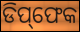
ଡିପ୍‌ଫେକ